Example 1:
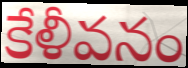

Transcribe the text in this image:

కేళీవనం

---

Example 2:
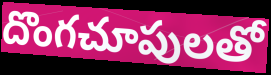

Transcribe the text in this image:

దొంగచూపులతో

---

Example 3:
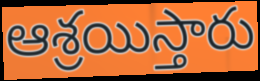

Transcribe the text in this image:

ఆశ్రయిస్తారు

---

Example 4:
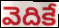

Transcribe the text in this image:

వెదికే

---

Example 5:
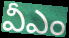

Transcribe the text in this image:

వీఎం